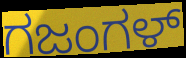
ಗಜಂಗಳ್